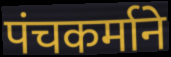
पंचकर्माने